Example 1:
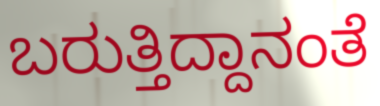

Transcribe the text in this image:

ಬರುತ್ತಿದ್ದಾನಂತೆ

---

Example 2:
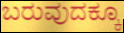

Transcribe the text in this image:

ಬರುವುದಕ್ಕೂ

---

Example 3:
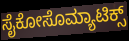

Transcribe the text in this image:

ಸೈಕೋಸೊಮ್ಯಾಟಿಕ್ಸ್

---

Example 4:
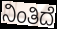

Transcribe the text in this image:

ನಿಂತಿದೆ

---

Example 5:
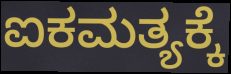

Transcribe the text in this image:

ಐಕಮತ್ಯಕ್ಕೆ